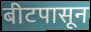
बीटपासून